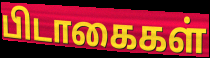
பிடாகைகள்